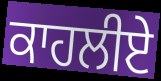
ਕਾਹਲੀਏ